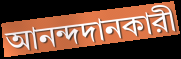
আনন্দদানকারী